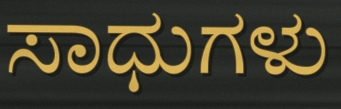
ಸಾಧುಗಳು